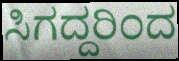
ಸಿಗದ್ದರಿಂದ